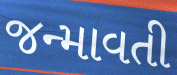
જન્માવતી